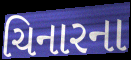
ચિનારના